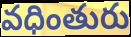
వధింతురు